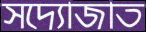
সদ্যোজাত